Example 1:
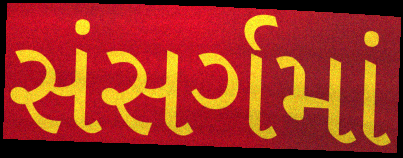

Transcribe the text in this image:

સંસર્ગમાં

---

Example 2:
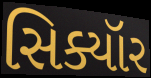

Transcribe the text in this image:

સિક્યૉર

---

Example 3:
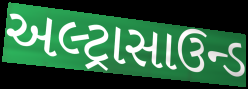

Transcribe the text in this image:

અલ્ટ્રાસાઉન્ડ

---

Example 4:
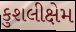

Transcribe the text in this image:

કુશલીક્ષેમ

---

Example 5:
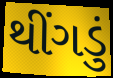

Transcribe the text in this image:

થીંગડું